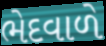
ભેદવાળે